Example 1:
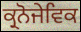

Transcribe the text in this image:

ਕ੍ਰਨੋਜੇਵਿਕ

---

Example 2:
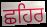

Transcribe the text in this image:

ਛਹਿਰ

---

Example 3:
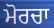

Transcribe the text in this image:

ਮੋਰਚਾ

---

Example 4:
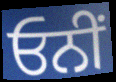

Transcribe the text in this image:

ਓਨੀਂ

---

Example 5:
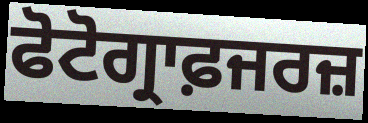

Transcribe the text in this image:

ਫੋਟੋਗ੍ਰਾਫ਼ਜਰਜ਼